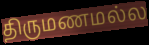
திருமணமல்ல